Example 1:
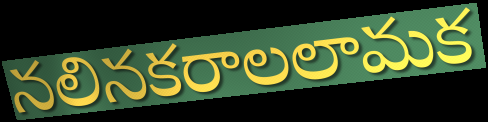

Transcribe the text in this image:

నలినకరాలలామక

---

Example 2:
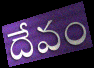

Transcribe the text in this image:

దేవం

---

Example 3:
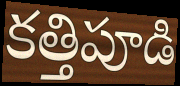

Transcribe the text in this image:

కత్తిపూడి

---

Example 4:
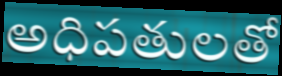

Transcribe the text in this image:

అధిపతులతో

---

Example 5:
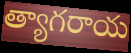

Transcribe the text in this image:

త్యాగరాయ